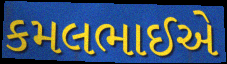
કમલભાઈએ